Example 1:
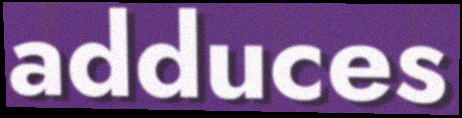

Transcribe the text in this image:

adduces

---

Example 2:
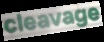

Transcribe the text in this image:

cleavage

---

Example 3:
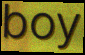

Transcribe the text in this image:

boy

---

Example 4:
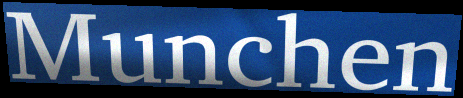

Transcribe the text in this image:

Munchen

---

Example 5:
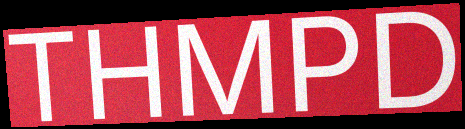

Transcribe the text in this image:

THMPD